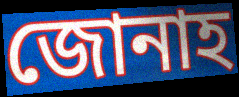
জোনাহ